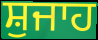
ਸ਼ੁਜਾਹ